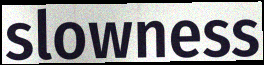
slowness